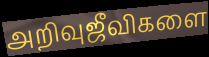
அறிவுஜீவிகளை